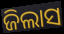
ଜିଲାସ